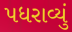
પધરાવ્યું